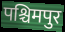
पश्चिमपुर